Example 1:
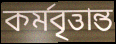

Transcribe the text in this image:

কর্মবৃত্তান্ত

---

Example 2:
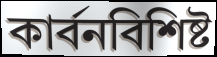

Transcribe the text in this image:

কার্বনবিশিষ্ট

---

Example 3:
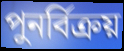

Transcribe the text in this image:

পুনর্বিক্রয়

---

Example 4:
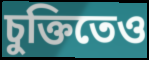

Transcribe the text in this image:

চুক্তিতেও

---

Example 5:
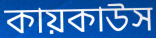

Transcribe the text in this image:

কায়কাউস